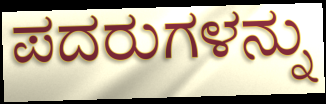
ಪದರುಗಳನ್ನು